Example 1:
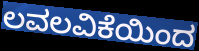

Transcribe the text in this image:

ಲವಲವಿಕೆಯಿಂದ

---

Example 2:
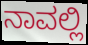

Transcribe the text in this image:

ನಾವಲ್ಲಿ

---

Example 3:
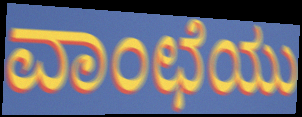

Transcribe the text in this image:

ವಾಂಛೆಯು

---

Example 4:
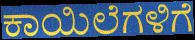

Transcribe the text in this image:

ಕಾಯಿಲೆಗಳಿಗೆ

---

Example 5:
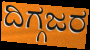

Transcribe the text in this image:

ದಿಗ್ಗಜರ